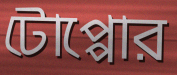
টোপ্পোর